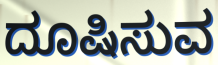
ದೂಷಿಸುವ